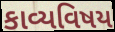
કાવ્યવિષય